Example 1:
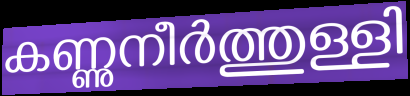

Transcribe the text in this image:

കണ്ണുനീർത്തുള്ളി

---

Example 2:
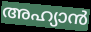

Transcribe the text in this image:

അഹ്യാൻ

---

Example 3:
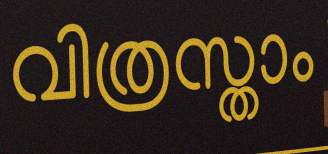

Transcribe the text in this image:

വിത്രസ്താം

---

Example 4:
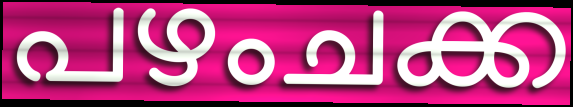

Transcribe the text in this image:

പഴംചക്ക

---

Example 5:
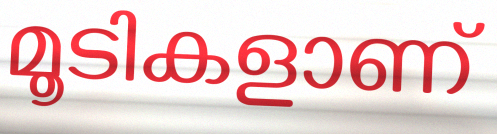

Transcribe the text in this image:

മൂടികളാണ്